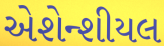
એશેન્શીયલ